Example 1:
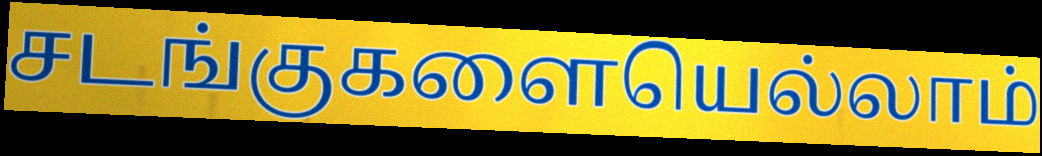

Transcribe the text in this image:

சடங்குகளையெல்லாம்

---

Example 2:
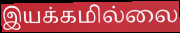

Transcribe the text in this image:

இயக்கமில்லை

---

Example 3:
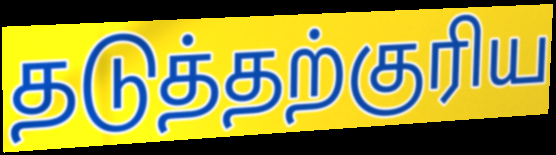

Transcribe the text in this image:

தடுத்தற்குரிய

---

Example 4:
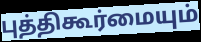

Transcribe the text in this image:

புத்திகூர்மையும்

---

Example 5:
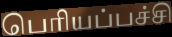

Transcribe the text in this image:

பெரியப்பச்சி